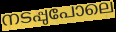
നടപ്പുപോലെ